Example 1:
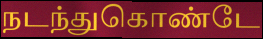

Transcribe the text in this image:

நடந்துகொண்டே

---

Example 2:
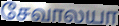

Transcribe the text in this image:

சேவாலயா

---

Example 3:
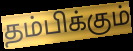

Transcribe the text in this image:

தம்பிக்கும்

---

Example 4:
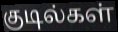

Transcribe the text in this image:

குடில்கள்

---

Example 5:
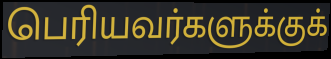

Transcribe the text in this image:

பெரியவர்களுக்குக்